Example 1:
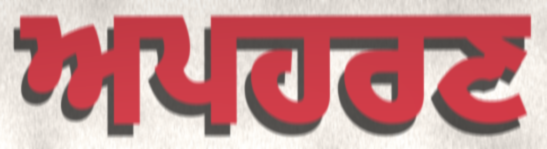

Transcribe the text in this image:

ਅਪਹਰਣ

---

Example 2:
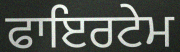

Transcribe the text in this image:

ਫਾਇਰਟੇਮ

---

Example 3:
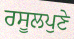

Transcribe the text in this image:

ਰਸੂਲਪੁਣੇ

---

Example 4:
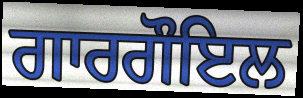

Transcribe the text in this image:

ਗਾਰਗੌਇਲ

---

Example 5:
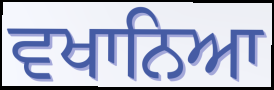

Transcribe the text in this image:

ਵਖਾਨਿਆ